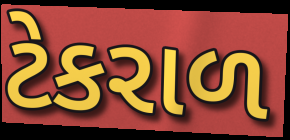
ટેકરાળ